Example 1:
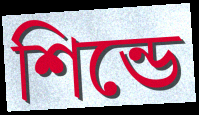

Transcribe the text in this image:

শিন্ডে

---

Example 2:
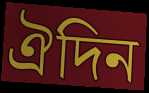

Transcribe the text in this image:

ঐদিন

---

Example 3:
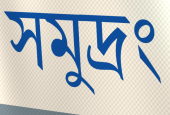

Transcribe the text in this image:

সমুদ্রং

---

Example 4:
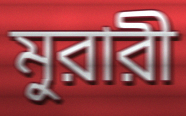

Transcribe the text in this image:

মুরারী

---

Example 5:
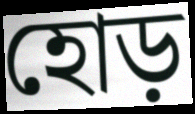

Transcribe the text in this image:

হোড়